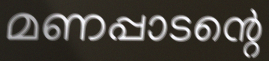
മണപ്പാടന്റെ